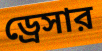
ড্রেসার